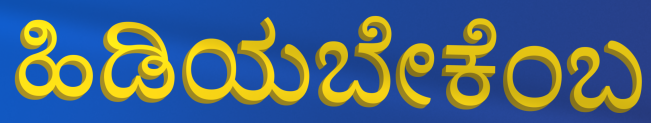
ಹಿಡಿಯಬೇಕೆಂಬ